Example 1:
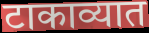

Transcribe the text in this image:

टाकाव्यात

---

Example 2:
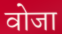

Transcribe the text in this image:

वोजा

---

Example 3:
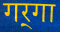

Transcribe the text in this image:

गर्गा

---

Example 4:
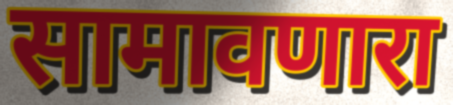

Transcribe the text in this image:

सामावणारा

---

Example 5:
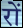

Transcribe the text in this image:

रों